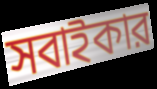
সবাইকার